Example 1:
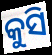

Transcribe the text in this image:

କୁସି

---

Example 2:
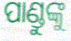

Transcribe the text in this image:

ପାଣ୍ଡୁଙ୍କୁ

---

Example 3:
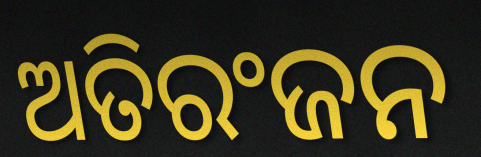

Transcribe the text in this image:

ଅତିରଂଜନ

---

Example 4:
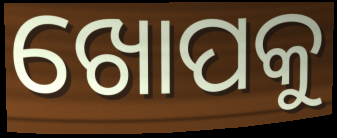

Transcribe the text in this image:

ଖୋପକୁ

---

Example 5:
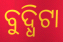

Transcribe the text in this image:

ବୁଦ୍ଧିଟା